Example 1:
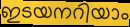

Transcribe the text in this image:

ഇടയനറിയാം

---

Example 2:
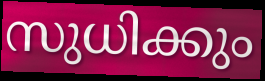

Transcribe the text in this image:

സുധിക്കും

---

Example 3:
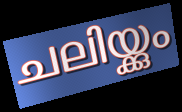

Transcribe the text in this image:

ചലിയ്ക്കും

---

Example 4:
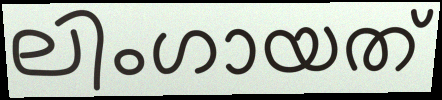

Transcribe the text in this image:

ലിംഗായത്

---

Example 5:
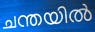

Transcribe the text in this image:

ചന്തയിൽ